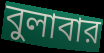
বুলাবার